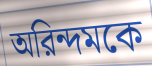
অরিন্দমকে